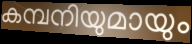
കമ്പനിയുമായും